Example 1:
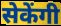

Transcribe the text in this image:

सेकेंगी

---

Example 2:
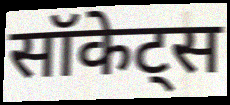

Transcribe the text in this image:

सॉकेट्स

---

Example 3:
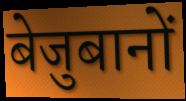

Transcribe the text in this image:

बेजुबानों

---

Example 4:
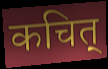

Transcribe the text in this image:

कचित्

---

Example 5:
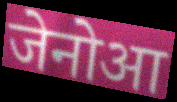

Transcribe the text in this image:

जेनोआ